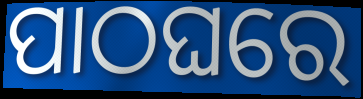
ପାଠଘରେ